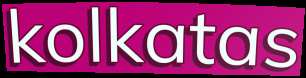
kolkatas